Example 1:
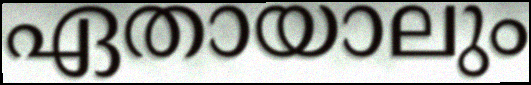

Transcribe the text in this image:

ഏതായാലും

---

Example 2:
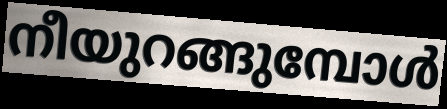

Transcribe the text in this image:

നീയുറങ്ങുമ്പോൾ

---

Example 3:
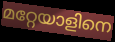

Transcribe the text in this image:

മറ്റേയാളിനെ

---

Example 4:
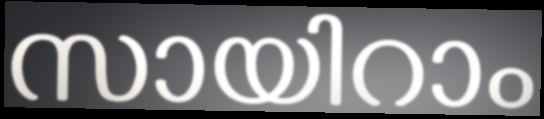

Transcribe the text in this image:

സായിറാം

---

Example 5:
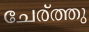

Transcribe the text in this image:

ചേര്ത്തു